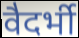
वैदर्भी